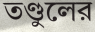
তণ্ডুলের